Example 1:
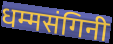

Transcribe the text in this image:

धम्मसंगिनी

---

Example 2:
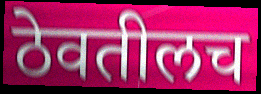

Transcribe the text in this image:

ठेवतीलच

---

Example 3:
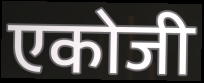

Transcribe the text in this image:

एकोजी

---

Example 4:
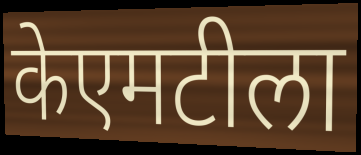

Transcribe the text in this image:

केएमटीला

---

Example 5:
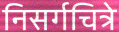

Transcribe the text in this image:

निसर्गचित्रे